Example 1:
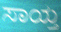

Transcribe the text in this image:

ಸಾಯ್ತ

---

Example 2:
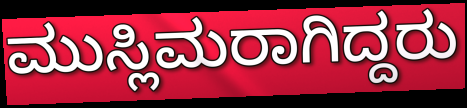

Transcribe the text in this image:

ಮುಸ್ಲಿಮರಾಗಿದ್ದರು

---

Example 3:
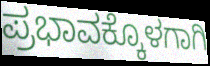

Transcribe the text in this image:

ಪ್ರಭಾವಕ್ಕೊಳಗಾಗಿ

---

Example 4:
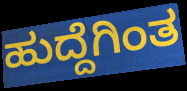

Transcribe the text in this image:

ಹುದ್ದೆಗಿಂತ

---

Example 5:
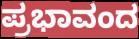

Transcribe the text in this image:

ಪ್ರಭಾವಂದ